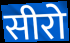
सीरो